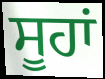
ਸੂਹਾਂ